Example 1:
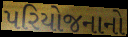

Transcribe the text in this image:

પરિયોજનાનો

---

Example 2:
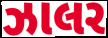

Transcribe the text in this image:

ઝાલર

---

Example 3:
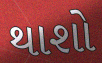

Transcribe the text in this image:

થાશો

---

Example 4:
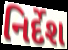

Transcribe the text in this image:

નિર્દેશ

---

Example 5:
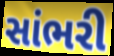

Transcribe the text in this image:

સાંભરી